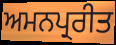
ਅਮਨਪ੍ਰਰੀਤ